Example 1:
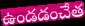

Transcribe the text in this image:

ఉండడంచేత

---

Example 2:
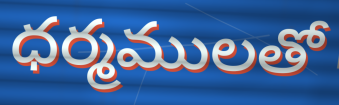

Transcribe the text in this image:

ధర్మములతో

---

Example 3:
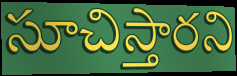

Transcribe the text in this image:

సూచిస్తారని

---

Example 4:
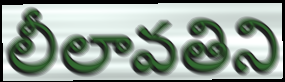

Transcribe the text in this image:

లీలావతిని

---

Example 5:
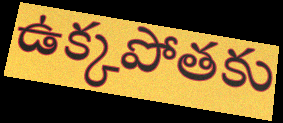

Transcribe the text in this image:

ఉక్కపోతకు